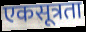
एकसूत्रता